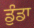
ਡੁੰਡਾ